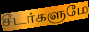
சீடர்களுமே